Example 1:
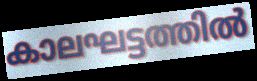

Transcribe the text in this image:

കാലഘട്ടത്തിൽ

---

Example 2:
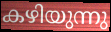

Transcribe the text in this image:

കഴിയുന്നു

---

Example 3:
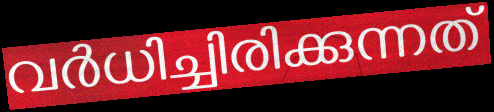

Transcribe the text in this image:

വർധിച്ചിരിക്കുന്നത്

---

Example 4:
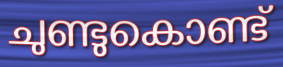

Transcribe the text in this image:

ചുണ്ടുകൊണ്ട്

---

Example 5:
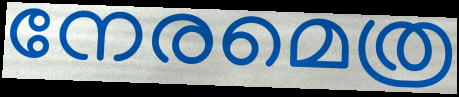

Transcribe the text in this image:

നേരമെത്ര